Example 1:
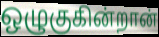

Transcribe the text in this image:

ஒழுகுகின்றான்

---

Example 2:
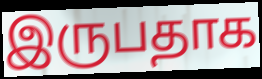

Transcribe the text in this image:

இருபதாக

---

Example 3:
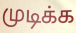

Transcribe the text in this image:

முடிக்க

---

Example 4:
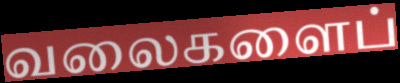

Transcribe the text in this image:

வலைகளைப்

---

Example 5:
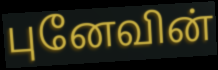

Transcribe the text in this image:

புனேவின்